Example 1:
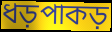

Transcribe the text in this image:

ধড়পাকড়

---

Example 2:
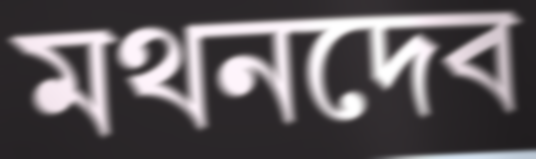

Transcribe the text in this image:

মথনদেব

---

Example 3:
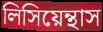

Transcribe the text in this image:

লিসিয়েন্থাস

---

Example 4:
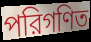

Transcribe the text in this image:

পরিগণিত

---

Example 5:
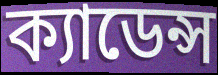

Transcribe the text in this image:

ক্যাডেন্স